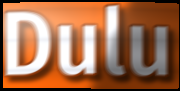
Dulu